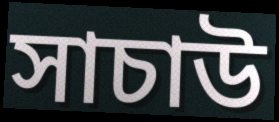
সাচাউ